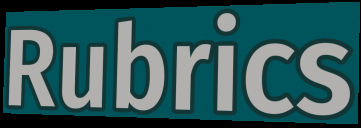
Rubrics